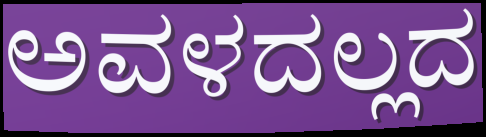
ಅವಳದಲ್ಲದ